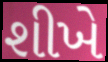
શીખે